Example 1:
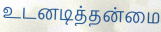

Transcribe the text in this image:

உடனடித்தன்மை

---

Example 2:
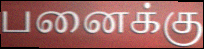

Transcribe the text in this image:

பனைக்கு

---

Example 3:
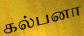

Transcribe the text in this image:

கல்பனா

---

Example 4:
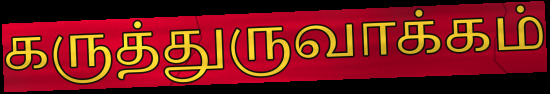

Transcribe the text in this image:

கருத்துருவாக்கம்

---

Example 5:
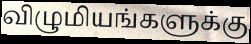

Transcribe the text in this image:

விழுமியங்களுக்கு